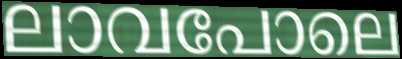
ലാവപോലെ